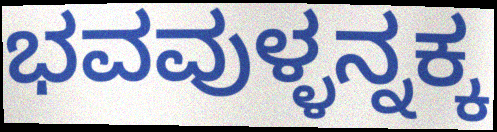
ಭವವುಳ್ಳನ್ನಕ್ಕ